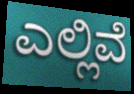
ಎಲ್ಲಿವೆ